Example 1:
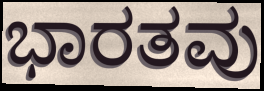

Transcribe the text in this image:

ಭಾರತವು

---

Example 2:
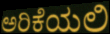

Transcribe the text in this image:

ಅರಿಕೆಯಲಿ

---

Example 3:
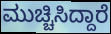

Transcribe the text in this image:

ಮುಚ್ಚಿಸಿದ್ದಾರೆ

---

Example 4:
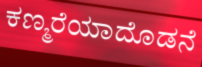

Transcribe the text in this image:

ಕಣ್ಮರೆಯಾದೊಡನೆ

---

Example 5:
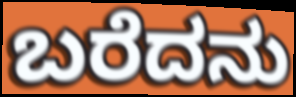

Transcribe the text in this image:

ಬರೆದನು